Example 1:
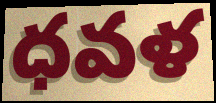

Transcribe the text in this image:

ధవళ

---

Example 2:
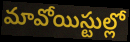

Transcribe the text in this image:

మావోయిస్టుల్లో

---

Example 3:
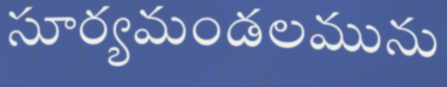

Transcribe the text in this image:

సూర్యమండలమును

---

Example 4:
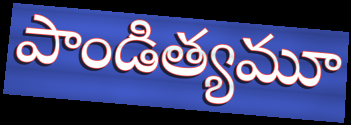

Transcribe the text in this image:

పాండిత్యమూ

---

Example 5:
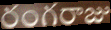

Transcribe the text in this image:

రంగరాజు